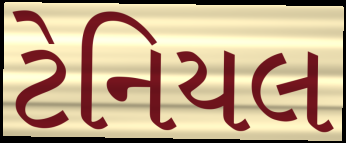
ટેનિયલ